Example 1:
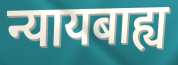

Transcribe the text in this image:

न्यायबाह्य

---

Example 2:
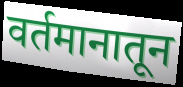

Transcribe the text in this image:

वर्तमानातून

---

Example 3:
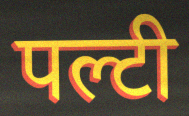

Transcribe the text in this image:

पल्टी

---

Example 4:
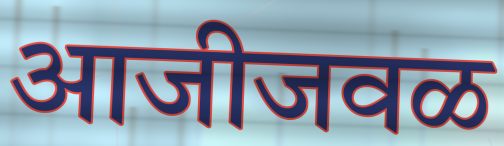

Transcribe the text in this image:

आजीजवळ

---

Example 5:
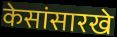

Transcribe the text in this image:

केसांसारखे